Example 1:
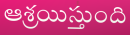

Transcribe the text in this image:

ఆశ్రయిస్తుంది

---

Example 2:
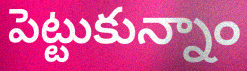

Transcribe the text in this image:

పెట్టుకున్నాం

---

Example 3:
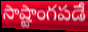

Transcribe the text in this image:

సాష్టాంగపడే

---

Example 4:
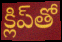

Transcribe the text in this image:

క్లిప్‌తో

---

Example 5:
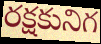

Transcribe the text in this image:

రక్షకునిగ